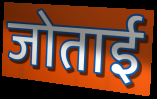
जोताई